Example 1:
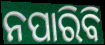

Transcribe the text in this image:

ନପାରିବି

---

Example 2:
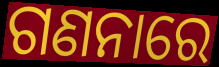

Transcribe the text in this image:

ଗଣନାରେ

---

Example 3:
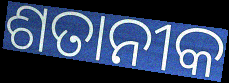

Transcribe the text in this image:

ଶତାନୀକ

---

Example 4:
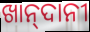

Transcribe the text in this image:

ଖାନ୍‍ଦାନୀ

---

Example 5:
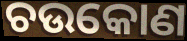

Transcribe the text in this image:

ଚଉକୋଣ